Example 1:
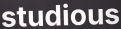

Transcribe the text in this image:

studious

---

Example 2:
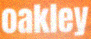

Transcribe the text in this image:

oakley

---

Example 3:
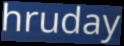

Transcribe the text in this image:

hruday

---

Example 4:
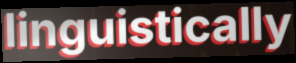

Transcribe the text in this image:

linguistically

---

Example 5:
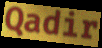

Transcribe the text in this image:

Qadir